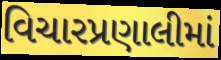
વિચારપ્રણાલીમાં